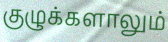
குழுக்களாலும்